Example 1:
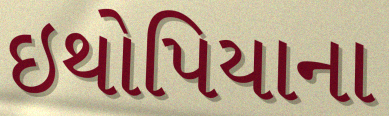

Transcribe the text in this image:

ઇથોપિયાના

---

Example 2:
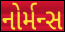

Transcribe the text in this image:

નોર્મન્સ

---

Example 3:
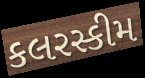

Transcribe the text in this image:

કલરસ્કીમ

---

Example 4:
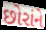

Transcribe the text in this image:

છોરાંને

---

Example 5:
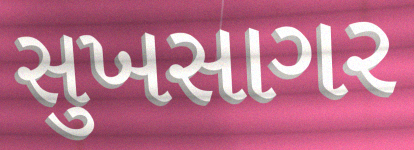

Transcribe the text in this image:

સુખસાગર